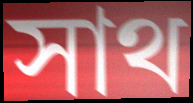
সাথ